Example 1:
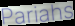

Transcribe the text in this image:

Pariahs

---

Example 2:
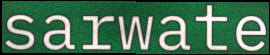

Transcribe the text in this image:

sarwate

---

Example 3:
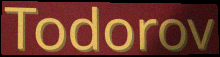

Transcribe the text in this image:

Todorov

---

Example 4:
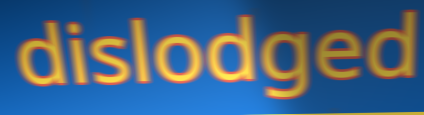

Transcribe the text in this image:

dislodged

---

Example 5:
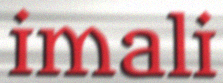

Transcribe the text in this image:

imali